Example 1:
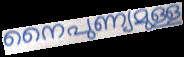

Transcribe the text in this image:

നൈപുണ്യമുള്ള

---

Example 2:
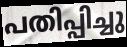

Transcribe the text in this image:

പതിപ്പിച്ചു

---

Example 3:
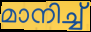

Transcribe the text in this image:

മാനിച്ച്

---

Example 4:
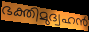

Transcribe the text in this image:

ഭക്തിമുദ്വഹൻ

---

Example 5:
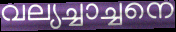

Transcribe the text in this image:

വല്യച്ചാച്ചനെ